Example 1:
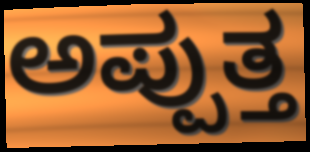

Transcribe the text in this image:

ಅಪ್ಪುತ್ತ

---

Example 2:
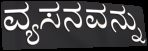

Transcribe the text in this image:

ವ್ಯಸನವನ್ನು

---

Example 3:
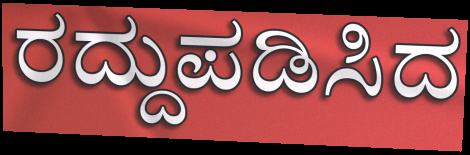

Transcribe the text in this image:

ರದ್ದುಪಡಿಸಿದ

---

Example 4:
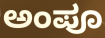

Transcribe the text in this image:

ಅಂಪೂ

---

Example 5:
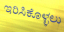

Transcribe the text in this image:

ಇರಿಸಿಕೊಳ್ಳಲು